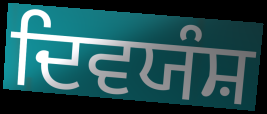
ਦਿਵਯੰਸ਼